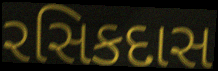
રસિકદાસ